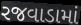
રજવાડામાં